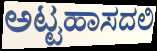
ಅಟ್ಟಹಾಸದಲಿ